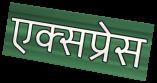
एक्‍सप्रेस